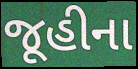
જૂહીના